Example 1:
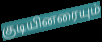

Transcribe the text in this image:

குடியினரையும்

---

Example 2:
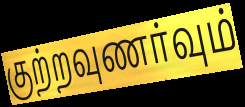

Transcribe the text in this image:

குற்றவுணர்வும்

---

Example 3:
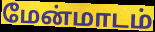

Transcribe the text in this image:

மேன்மாடம்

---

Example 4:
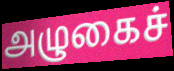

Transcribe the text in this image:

அழுகைச்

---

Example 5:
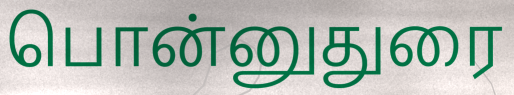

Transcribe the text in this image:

பொன்னுதுரை